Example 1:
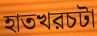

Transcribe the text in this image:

হাতখরচটা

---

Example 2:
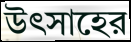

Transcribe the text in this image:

উৎসাহের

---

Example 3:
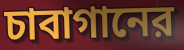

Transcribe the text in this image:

চাবাগানের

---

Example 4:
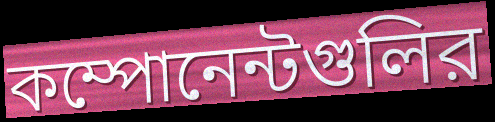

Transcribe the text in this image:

কম্পোনেন্টগুলির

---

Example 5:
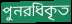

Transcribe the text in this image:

পুনরধিকৃত